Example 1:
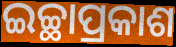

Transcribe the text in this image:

ଇଚ୍ଛାପ୍ରକାଶ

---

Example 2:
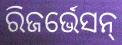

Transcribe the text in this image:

ରିଜର୍ଭେସନ୍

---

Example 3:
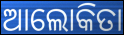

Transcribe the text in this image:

ଆଲୋକିତା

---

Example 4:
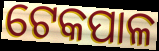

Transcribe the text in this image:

ଟେକପାଳ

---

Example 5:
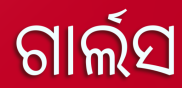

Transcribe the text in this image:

ଗାର୍ଲସ